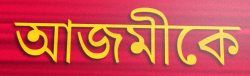
আজমীকে